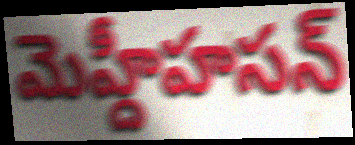
మెహ్దీహసన్